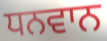
ਧਨਵਾਨ